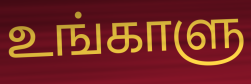
உங்காளு